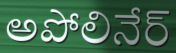
అపోలినేర్